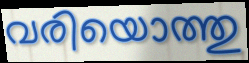
വരിയൊത്തു